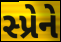
સ્પ્રેને